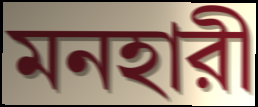
মনহারী